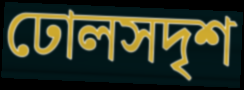
ঢোলসদৃশ